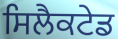
ਸਿਲੈਕਟੇਡ